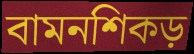
বামনশিকড়